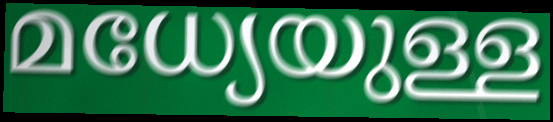
മധ്യേയുള്ള